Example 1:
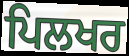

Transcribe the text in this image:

ਪਿਲਖਰ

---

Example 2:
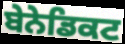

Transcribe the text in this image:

ਬੇਨੇਡਿਕਟ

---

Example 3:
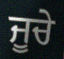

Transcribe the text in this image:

ਜੂਚੇ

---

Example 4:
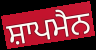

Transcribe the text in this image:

ਸ਼ਾਪਮੈਨ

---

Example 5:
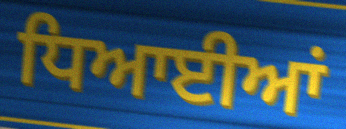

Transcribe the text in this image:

ਧਿਆਈਆਂ